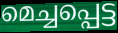
മെച്ചപ്പെട്ട